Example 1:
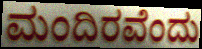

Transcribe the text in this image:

ಮಂದಿರವೆಂದು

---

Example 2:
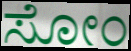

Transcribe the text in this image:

ಸೋಂ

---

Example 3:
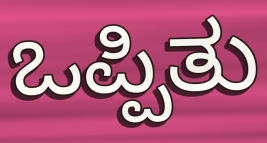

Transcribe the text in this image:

ಒಪ್ಪಿತು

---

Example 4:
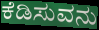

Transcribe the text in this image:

ಕೆಡಿಸುವನು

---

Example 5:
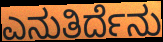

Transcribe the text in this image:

ಎನುತಿರ್ದೆನು